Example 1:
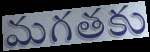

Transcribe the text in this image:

మగతకు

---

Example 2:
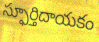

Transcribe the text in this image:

స్ఫూర్తిదాయకం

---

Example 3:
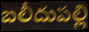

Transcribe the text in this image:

బలీదుపల్లి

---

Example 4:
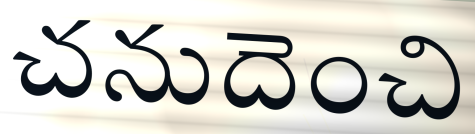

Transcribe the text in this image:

చనుదెంచి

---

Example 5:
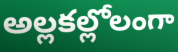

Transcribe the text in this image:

అల్లకల్లోలంగా